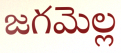
జగమెల్ల